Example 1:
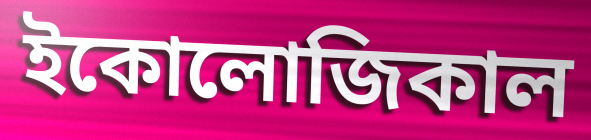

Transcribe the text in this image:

ইকোলোজিকাল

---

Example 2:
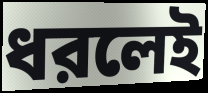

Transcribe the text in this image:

ধরলেই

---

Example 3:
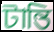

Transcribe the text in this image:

টান্তি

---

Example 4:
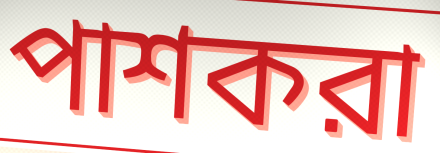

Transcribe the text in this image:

পাশকরা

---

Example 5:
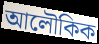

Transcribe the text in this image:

আলৌকিক